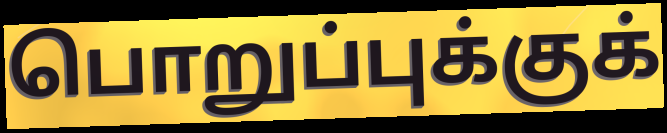
பொறுப்புக்குக்